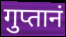
गुप्तानं